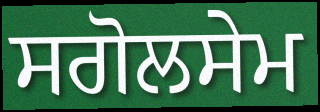
ਸਗੋਲਸੇਮ